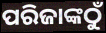
ପରିଜାଙ୍କଠୁଁ